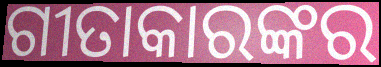
ଗୀତାକାରଙ୍କର